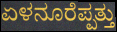
ಏಳನೂರೆಪ್ಪತ್ತು